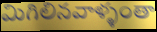
మిగిలినవాళ్ళంతా